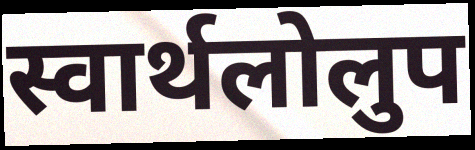
स्वार्थलोलुप